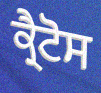
ਕ੍ਰੈਟੋਸ